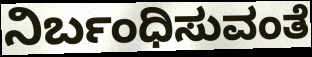
ನಿರ್ಬಂಧಿಸುವಂತೆ